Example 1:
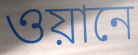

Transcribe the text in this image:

ওয়ানে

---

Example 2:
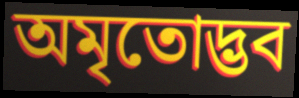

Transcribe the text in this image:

অমৃতোদ্ভব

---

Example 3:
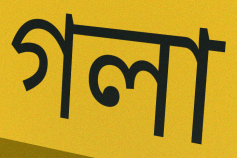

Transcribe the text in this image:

গলা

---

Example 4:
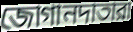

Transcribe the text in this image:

জোগানদাতারা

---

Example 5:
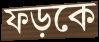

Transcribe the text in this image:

ফড়কে